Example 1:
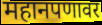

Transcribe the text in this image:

महानपणावर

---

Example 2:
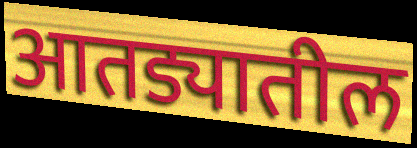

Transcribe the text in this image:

आतड्यातील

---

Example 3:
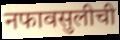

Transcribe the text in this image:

नफावसुलीची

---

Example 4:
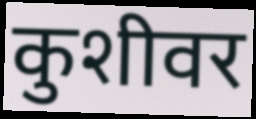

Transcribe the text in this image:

कुशीवर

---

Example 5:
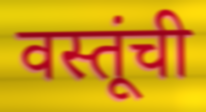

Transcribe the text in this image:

वस्तूंची